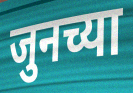
जुनच्या